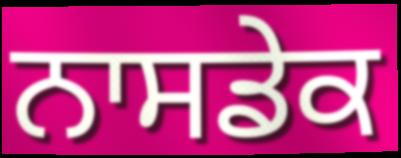
ਨਾਸਡੇਕ